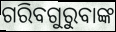
ଗରିବଗୁରୁବାଙ୍କ